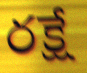
రక్షే